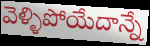
వెళ్ళిపోయేదాన్నే